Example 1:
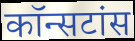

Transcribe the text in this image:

कॉन्सटांस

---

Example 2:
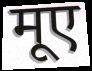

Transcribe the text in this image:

मूए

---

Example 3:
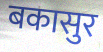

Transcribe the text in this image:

बकासुर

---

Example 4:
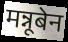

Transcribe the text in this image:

मन्नूबेन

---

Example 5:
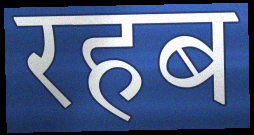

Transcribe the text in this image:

रहब